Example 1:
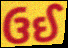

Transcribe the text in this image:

ઉઈ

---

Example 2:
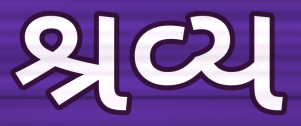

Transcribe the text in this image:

શ્રવ્ય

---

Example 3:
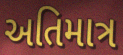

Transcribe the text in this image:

અતિમાત્ર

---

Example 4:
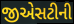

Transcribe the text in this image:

જીએસટીની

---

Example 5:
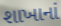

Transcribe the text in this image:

શાખાનાં